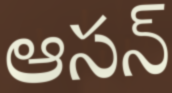
ఆసన్